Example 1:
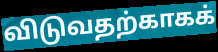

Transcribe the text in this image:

விடுவதற்காகக்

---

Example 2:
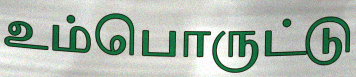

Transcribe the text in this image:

உம்பொருட்டு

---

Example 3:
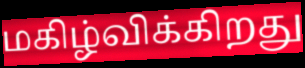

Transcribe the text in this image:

மகிழ்விக்கிறது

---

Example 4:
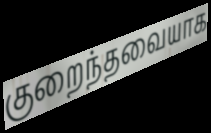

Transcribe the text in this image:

குறைந்தவையாக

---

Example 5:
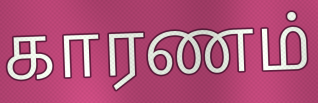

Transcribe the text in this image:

காரணம்